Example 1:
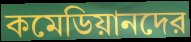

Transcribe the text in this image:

কমেডিয়ানদের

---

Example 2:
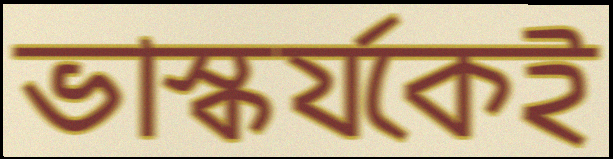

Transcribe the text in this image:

ভাস্কর্যকেই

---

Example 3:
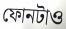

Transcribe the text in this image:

ফোনটাও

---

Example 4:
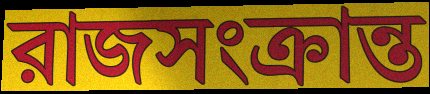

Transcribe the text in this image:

রাজসংক্রান্ত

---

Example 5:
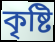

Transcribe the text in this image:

কৃষ্টি